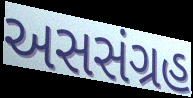
અસસંગ્રહ